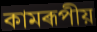
কামৰূপীয়